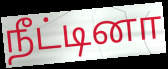
நீட்டினா